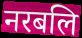
नरबलि